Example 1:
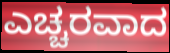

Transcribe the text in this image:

ಎಚ್ಚರವಾದ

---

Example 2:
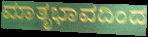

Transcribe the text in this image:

ಮಾತೃಭಾವದಿಂದ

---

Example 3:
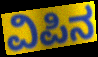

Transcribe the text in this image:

ವಿಪಿನ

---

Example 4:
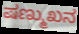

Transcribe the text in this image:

ಷಣ್ಮುಖನ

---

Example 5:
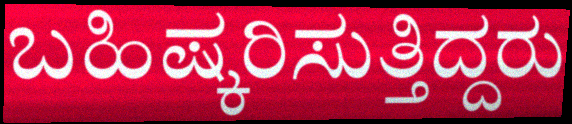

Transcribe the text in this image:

ಬಹಿಷ್ಕರಿಸುತ್ತಿದ್ದರು